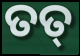
ତତ୍